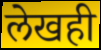
लेखही